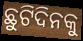
ଛୁଟିଦିନକୁ